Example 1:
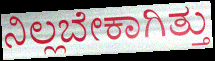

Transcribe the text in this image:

ನಿಲ್ಲಬೇಕಾಗಿತ್ತು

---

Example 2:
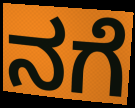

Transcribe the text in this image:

ನಗೆ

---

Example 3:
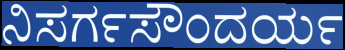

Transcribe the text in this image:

ನಿಸರ್ಗಸೌಂದರ್ಯ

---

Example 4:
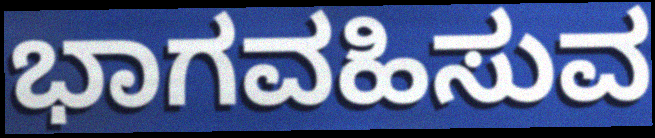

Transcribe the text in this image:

ಭಾಗವಹಿಸುವ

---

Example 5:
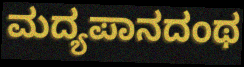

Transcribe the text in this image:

ಮದ್ಯಪಾನದಂಥ